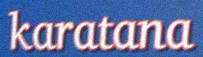
karatana